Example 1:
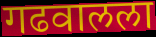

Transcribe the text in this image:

गढवालला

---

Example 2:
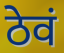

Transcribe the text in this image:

ठेवं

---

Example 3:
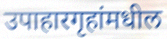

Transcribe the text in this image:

उपाहारगृहांमधील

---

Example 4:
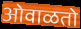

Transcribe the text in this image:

ओवाळतो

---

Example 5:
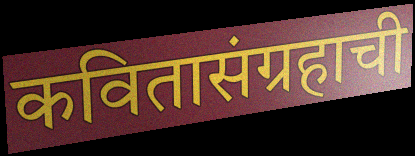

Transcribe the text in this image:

कवितासंग्रहाची